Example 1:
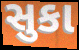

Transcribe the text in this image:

સુકા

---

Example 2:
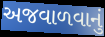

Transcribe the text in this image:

અજવાળવાનું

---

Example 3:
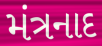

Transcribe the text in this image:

મંત્રનાદ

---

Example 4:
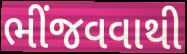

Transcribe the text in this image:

ભીંજવવાથી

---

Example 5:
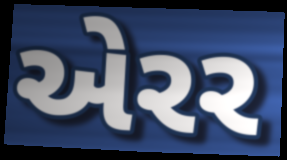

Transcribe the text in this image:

એરર